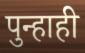
पुन्हाही